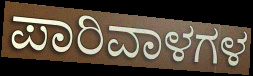
ಪಾರಿವಾಳಗಳ